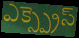
ఎక్స్ప్రెస్